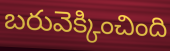
బరువెక్కించింది